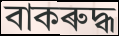
বাকৰুদ্ধ